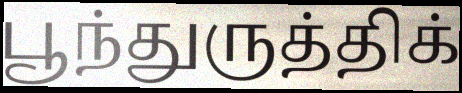
பூந்துருத்திக்